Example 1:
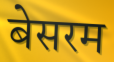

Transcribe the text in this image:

बेसरम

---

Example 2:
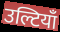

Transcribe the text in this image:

उल्टियाँ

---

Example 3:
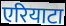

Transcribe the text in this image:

एरियाटा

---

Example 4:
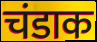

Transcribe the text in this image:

चंडाक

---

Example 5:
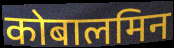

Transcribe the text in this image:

कोबालमिन